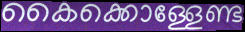
കൈക്കൊള്ളേണ്ട